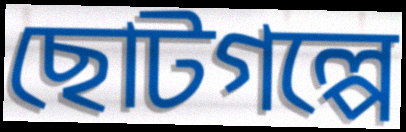
ছোটগল্পে